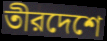
তীরদেশে